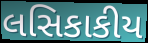
લસિકાકીય